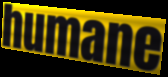
humane